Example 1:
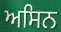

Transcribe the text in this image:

ਅਸਿਨ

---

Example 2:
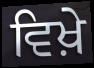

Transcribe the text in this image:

ਵਿਖ਼ੇ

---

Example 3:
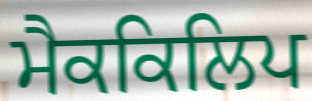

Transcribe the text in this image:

ਮੈਕਕਿਲਿਪ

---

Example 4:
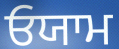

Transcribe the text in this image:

ਓਯਾਮ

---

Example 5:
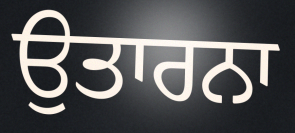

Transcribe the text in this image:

ਉਤਾਰਨਾ